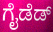
ಗೈಡೆಡ್